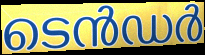
ടെൻഡർ